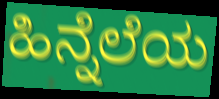
ಹಿನ್ನೆಲೆಯ